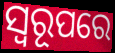
ସ୍ଵରୂପରେ